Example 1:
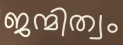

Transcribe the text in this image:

ജന്മിത്വം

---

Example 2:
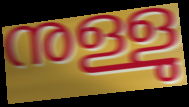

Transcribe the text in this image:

നുള്ളു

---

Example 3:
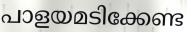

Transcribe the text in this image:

പാളയമടിക്കേണ്ട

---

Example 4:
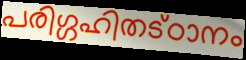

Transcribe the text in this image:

പരിഗ്ഗഹിതട്ഠാനം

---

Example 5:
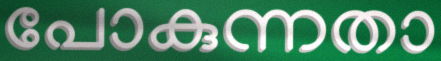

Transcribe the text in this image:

പോകുന്നതാ